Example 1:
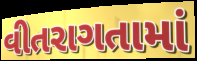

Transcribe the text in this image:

વીતરાગતામાં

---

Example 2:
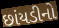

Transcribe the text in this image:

છાંયડીનો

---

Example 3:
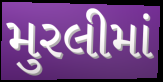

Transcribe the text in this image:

મુરલીમાં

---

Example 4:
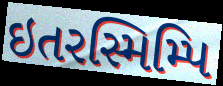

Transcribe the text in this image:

ઇતરસ્મિમ્પિ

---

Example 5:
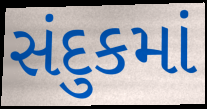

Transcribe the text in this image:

સંદુકમાં